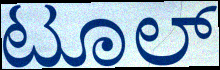
ಟೂಲ್